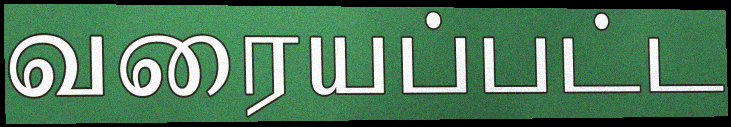
வரையப்பட்ட